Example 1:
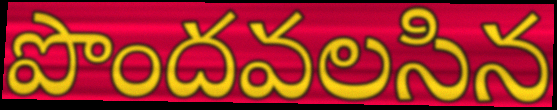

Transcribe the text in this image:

పొందవలసిన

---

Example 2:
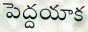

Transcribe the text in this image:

పెద్దయాక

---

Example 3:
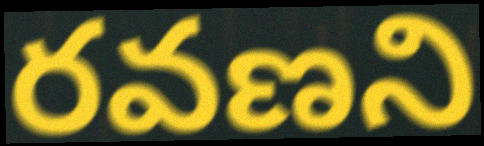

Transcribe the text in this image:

రవణని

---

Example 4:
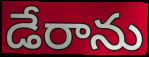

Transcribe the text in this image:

డేరాను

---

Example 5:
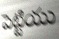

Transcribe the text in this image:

పెట్టియు